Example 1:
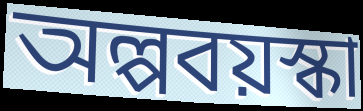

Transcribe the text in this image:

অল্পবয়স্কা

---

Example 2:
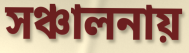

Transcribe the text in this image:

সঞ্চালনায়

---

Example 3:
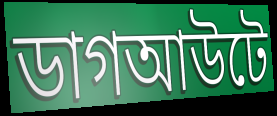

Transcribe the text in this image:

ডাগআউটে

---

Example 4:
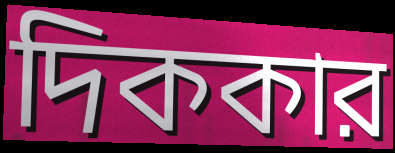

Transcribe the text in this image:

দিককার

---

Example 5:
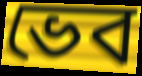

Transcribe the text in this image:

ভেব